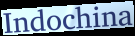
Indochina